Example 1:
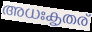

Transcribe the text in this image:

അധഃകൃതര്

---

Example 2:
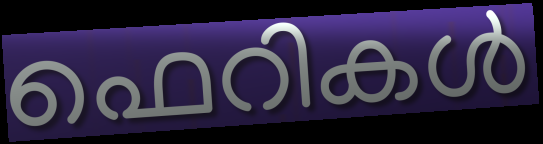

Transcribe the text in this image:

ഫെറികൾ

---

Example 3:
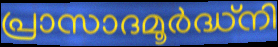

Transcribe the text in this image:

പ്രാസാദമൂർദ്ധ്നി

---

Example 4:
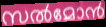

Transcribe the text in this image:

സൽമോൻ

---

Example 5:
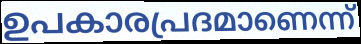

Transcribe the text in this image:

ഉപകാരപ്രദമാണെന്ന്